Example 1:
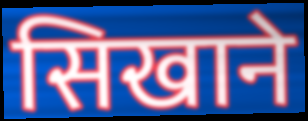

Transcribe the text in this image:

सिखाने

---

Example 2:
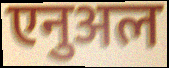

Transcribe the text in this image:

एनुअल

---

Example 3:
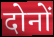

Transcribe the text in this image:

दोनों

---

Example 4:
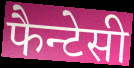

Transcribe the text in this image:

फैन्टेसी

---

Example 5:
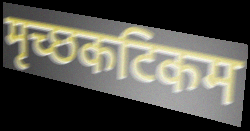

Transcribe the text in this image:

मृच्छकटिकम